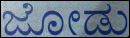
ಜೋಡು